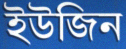
ইউজিন